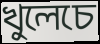
খুলেচে